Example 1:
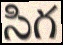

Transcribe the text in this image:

సిగ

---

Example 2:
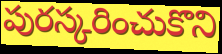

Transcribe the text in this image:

పురస్కరించుకొని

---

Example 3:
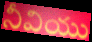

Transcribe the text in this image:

నీవియు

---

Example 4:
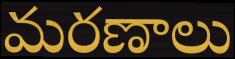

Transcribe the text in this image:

మరణాలు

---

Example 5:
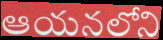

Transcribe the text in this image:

ఆయనలోని